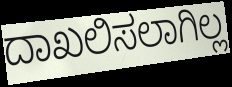
ದಾಖಲಿಸಲಾಗಿಲ್ಲ